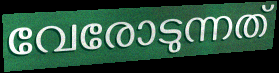
വേരോടുന്നത്